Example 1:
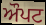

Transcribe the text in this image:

ਔਪਟ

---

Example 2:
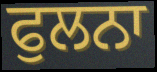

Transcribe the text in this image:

ਫੁਲਨਾ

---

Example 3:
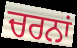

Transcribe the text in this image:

ਚਰਨਾਂ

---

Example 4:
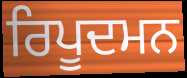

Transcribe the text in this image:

ਰਿਪੂਦਮਨ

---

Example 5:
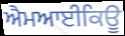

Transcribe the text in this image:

ਐਮਆਈਕਿਊ